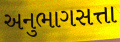
અનુભાગસત્તા